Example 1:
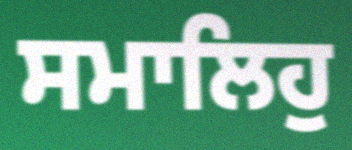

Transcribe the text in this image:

ਸਮਾਲਿਹੁ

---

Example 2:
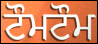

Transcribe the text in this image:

ਟੌਮਟੌਮ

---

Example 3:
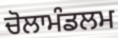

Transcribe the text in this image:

ਚੋਲਾਮੰਡਲਮ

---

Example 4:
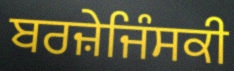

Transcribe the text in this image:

ਬਰਜ਼ੇਜਿੰਸਕੀ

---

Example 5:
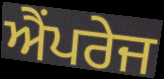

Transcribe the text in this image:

ਐਂਪਰੇਜ